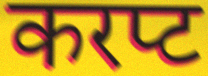
करप्ट